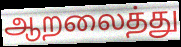
ஆறலைத்து